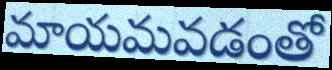
మాయమవడంతో